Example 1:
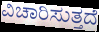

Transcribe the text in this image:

ವಿಚಾರಿಸುತ್ತದೆ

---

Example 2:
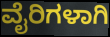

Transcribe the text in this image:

ವೈರಿಗಳಾಗಿ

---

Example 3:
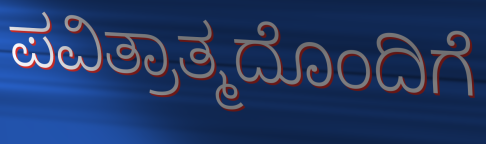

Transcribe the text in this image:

ಪವಿತ್ರಾತ್ಮದೊಂದಿಗೆ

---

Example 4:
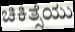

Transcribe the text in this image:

ಚಿಕಿತ್ಸೆಯು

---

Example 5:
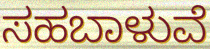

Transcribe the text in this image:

ಸಹಬಾಳುವೆ